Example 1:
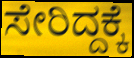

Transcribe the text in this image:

ಸೇರಿದ್ದಕ್ಕೆ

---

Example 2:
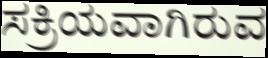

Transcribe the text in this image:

ಸಕ್ರಿಯವಾಗಿರುವ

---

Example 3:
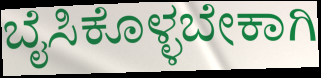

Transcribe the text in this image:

ಬೈಸಿಕೊಳ್ಳಬೇಕಾಗಿ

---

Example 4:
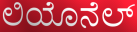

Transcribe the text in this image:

ಲಿಯೊನೆಲ್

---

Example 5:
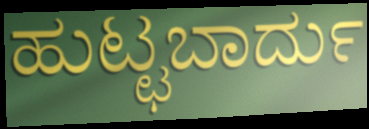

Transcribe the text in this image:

ಹುಟ್ಟಬಾರ್ದು